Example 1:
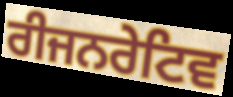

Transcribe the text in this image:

ਰੀਜਨਰੇਟਿਵ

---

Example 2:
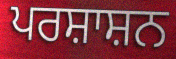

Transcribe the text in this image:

ਪਰਸ਼ਾਸ਼ਨ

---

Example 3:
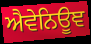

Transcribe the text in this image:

ਐਵੇਨਿਊਞ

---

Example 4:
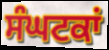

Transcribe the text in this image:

ਸੰਘਟਕਾਂ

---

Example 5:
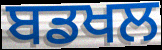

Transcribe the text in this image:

ਬਡਖਲ